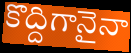
కొద్దిగానైనా